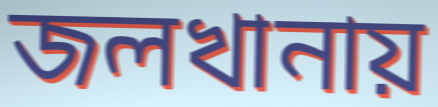
জলখানায়